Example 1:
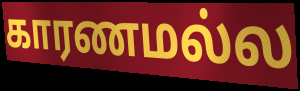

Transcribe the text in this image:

காரணமல்ல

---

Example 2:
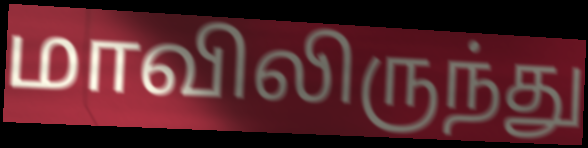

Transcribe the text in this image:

மாவிலிருந்து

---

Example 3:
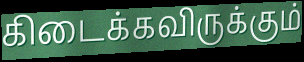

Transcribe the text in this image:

கிடைக்கவிருக்கும்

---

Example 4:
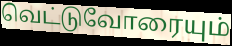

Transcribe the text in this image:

வெட்டுவோரையும்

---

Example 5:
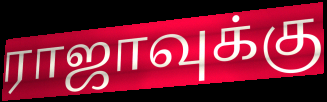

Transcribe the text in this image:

ராஜாவுக்கு